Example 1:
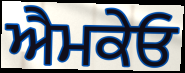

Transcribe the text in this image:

ਐਮਕੇਓ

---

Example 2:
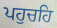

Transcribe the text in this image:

ਪਹੁਚਹਿ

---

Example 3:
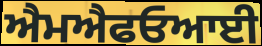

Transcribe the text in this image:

ਐਮਐਫਓਆਈ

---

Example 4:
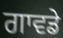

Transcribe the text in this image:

ਗਾਵਡੇ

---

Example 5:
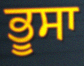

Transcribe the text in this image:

ਭੂਸਾ